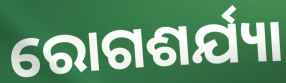
ରୋଗଶର୍ଯ୍ୟା